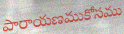
పారాయణముకోసము